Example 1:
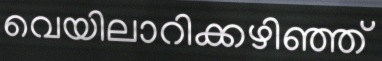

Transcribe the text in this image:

വെയിലാറിക്കഴിഞ്ഞ്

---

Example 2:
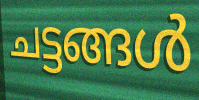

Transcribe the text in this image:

ചട്ടങ്ങൾ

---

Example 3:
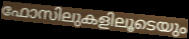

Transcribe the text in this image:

ഫോസിലുകളിലൂടെയും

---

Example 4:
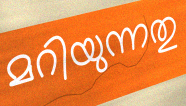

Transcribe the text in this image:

മറിയുന്നതു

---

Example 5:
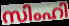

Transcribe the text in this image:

സിംഹി